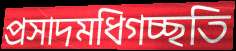
প্রসাদমধিগচ্ছতি